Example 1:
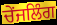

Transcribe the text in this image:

ਚੇਂਜਲਿੰਗ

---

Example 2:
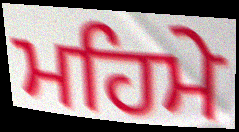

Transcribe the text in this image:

ਮਹਿਮੇ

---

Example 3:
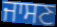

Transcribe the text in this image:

ਜਾਸਣ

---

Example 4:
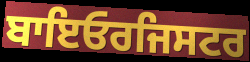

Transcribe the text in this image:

ਬਾਇਓਰਜਿਸਟਰ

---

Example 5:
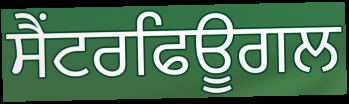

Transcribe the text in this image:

ਸੈਂਟਰਫਿਊਗਲ